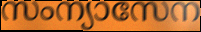
സംന്യാസേന